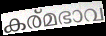
കര്മഭാവ